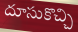
దూసుకొచ్చి